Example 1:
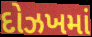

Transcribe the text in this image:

દોઝખમાં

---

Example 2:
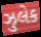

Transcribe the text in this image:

ઝુલેક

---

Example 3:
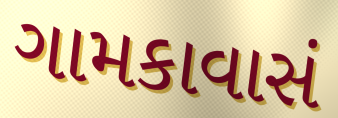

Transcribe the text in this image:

ગામકાવાસં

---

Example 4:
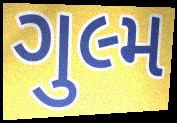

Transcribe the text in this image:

ગુલ્મ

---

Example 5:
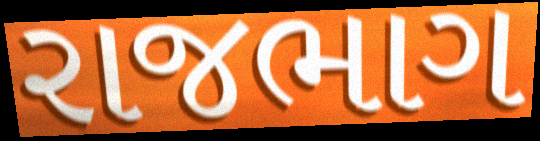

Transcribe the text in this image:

રાજભાગ